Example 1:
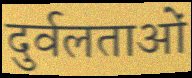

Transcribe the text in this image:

दुर्वलताओं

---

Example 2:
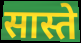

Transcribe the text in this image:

सास्ते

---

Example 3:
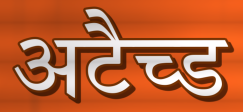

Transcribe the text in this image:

अटैच्ड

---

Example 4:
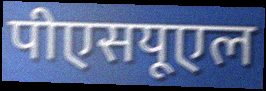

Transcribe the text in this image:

पीएसयूएल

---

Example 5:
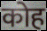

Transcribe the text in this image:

कोह